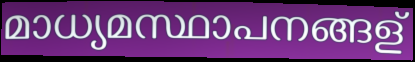
മാധ്യമസ്ഥാപനങ്ങള്